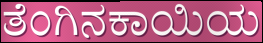
ತೆಂಗಿನಕಾಯಿಯ